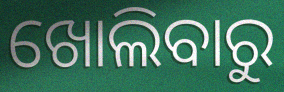
ଖୋଲିବାରୁ